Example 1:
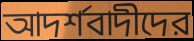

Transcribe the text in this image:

আদর্শবাদীদের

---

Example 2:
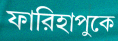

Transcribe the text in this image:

ফারিহাপুকে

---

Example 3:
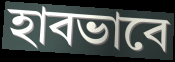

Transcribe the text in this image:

হাবভাবে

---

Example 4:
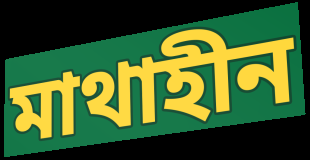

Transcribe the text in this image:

মাথাহীন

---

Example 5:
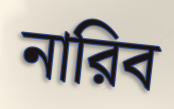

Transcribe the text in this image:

নারিব